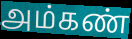
அம்கண்